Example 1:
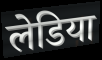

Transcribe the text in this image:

लेडिया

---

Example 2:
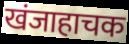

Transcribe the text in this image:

खंजाहाचक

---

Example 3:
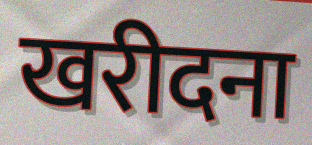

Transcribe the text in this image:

खरीदना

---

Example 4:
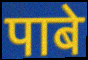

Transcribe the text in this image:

पाबे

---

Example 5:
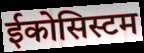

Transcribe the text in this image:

ईकोसिस्‍टम